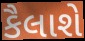
કૈલાશે